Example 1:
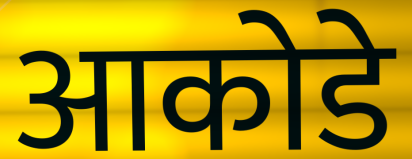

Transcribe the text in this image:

आकोडे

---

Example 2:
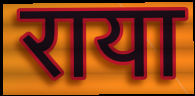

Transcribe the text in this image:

राया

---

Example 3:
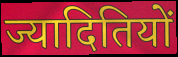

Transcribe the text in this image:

ज्यादितियों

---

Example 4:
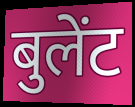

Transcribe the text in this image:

बुलेंट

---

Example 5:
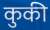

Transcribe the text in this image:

कुकी